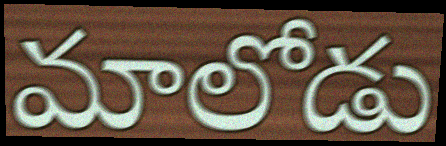
మాలోడు